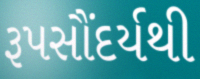
રૂપસૌંદર્યથી